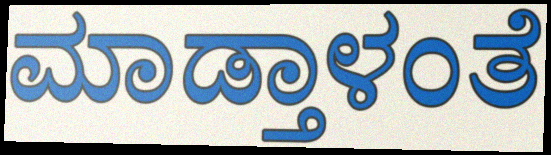
ಮಾಡ್ತಾಳಂತೆ